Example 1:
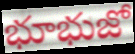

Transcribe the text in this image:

భూభుజో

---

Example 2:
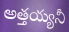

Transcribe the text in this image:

అత్తయ్యనీ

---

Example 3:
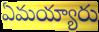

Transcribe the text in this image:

ఏమయ్యారు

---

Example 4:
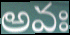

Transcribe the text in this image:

అవః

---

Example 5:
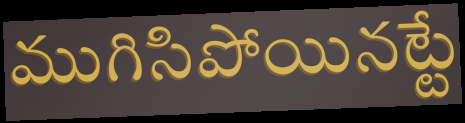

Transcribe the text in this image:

ముగిసిపోయినట్టే